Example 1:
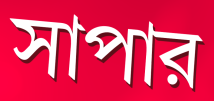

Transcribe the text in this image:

সাপার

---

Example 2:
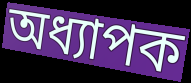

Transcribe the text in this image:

অধ্যাপক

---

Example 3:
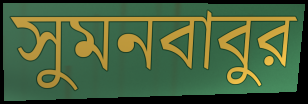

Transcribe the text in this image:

সুমনবাবুর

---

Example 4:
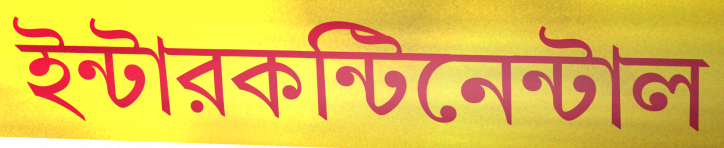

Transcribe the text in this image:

ইন্টারকন্টিনেন্টাল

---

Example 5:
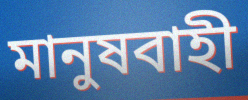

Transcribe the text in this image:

মানুষবাহী